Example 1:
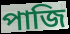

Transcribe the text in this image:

পাজি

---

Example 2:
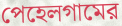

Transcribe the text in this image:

পেহেলগামের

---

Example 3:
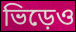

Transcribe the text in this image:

ভিড়েও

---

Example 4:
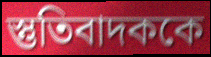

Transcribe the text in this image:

স্তুতিবাদককে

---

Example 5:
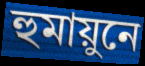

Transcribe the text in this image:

হুমায়ুনে